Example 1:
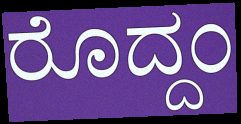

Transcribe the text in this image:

ರೊದ್ದಂ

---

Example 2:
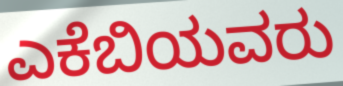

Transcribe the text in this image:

ಎಕೆಬಿಯವರು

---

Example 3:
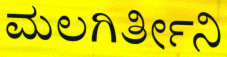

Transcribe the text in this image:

ಮಲಗಿರ್ತೀನಿ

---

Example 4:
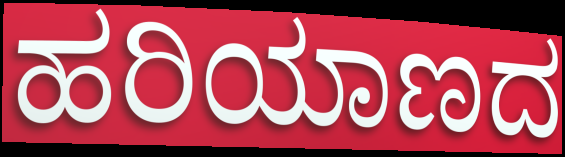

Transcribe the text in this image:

ಹರಿಯಾಣದ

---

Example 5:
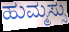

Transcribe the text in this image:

ಹುಮ್ಮಸ್ಸು